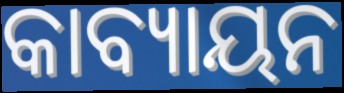
କାବ୍ୟାୟନ